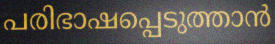
പരിഭാഷപ്പെടുത്താൻ